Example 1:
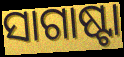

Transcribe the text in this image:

ସାଗାଷ୍ଟା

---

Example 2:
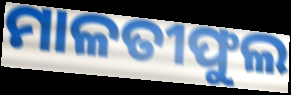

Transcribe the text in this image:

ମାଳତୀଫୁଲ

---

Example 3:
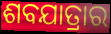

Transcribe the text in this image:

ଶବଯାତ୍ରାର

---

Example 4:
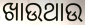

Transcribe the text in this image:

ଖାଉଥାଉ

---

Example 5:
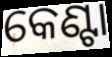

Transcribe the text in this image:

କେଣ୍ଟା